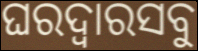
ଘରଦ୍ୱାରସବୁ